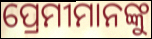
ପ୍ରେମୀମାନଙ୍କୁ